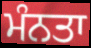
ਮੰਨਤਾ